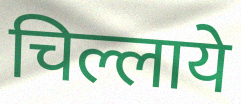
चिल्लाये